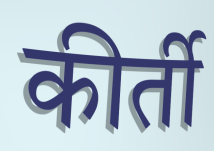
कीर्ती